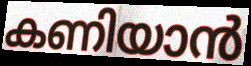
കണിയാൻ